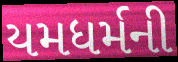
યમધર્મની